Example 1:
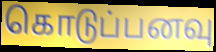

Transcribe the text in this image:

கொடுப்பனவு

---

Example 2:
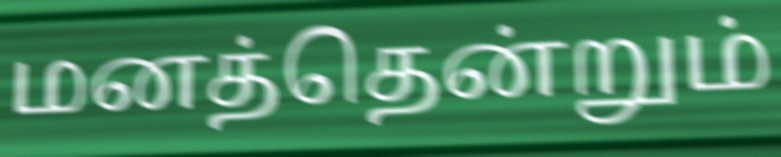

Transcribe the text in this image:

மனத்தென்றும்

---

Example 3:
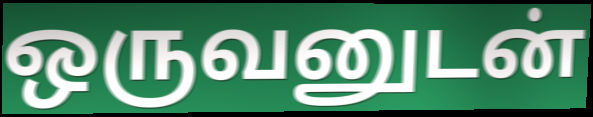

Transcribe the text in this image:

ஒருவனுடன்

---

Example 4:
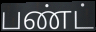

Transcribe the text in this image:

பண்ட்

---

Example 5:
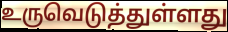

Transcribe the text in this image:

உருவெடுத்துள்ளது